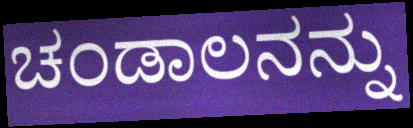
ಚಂಡಾಲನನ್ನು